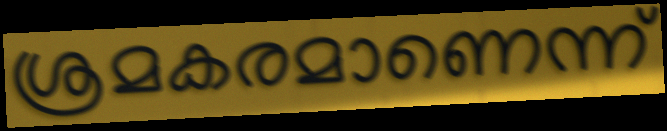
ശ്രമകരമാണെന്ന്